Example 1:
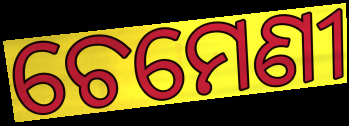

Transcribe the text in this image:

ଚେମେଣୀ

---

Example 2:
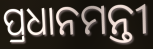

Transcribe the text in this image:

ପ୍ରଧାନମନ୍ତୀ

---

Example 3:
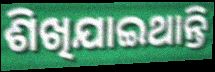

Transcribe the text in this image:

ଶିଖିଯାଇଥାନ୍ତି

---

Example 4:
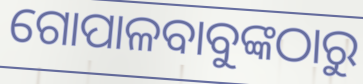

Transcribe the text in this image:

ଗୋପାଳବାବୁଙ୍କଠାରୁ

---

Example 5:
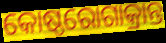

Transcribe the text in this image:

କୋଷ୍ଠରୋଗାକ୍ରାନ୍ତ